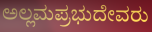
ಅಲ್ಲಮಪ್ರಭುದೇವರು